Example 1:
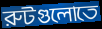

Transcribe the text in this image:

রুটগুলোতে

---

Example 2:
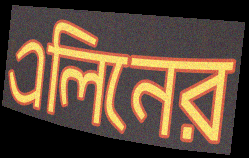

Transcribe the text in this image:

এলিনের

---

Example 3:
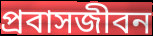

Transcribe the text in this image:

প্রবাসজীবন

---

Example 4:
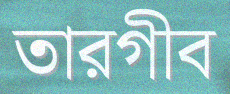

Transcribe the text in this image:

তারগীব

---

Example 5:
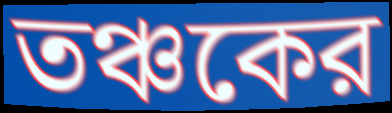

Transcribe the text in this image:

তঞ্চকের